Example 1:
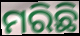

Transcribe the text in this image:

ମରିଛି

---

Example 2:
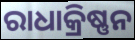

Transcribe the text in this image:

ରାଧାକ୍ରିଷ୍ଣନ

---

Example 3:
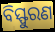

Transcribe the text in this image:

ବିସ୍ଫୁରଣ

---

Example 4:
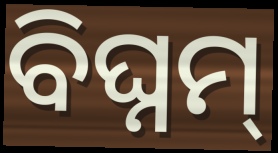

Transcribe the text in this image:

ବିଘ୍ନମ୍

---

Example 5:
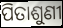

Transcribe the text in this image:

ପିତାଶୁଣୀ